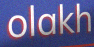
olakh